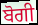
ਬੋਗੀ